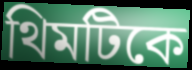
থিমটিকে